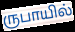
ருபாயில்